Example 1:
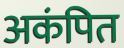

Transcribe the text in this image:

अकंपित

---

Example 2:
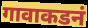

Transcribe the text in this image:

गावाकडनं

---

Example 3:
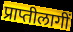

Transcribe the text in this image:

प्राप्तीलागीं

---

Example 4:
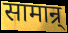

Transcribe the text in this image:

सामान्र्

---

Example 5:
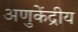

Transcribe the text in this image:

अणुकेंद्रीय